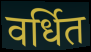
वर्धित